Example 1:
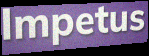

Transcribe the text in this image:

Impetus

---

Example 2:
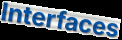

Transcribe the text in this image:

Interfaces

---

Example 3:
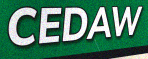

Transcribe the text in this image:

CEDAW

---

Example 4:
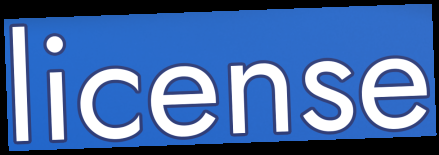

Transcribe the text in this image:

license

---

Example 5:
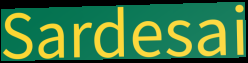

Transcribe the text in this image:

Sardesai